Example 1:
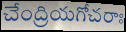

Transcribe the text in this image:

చేంద్రియగోచరాః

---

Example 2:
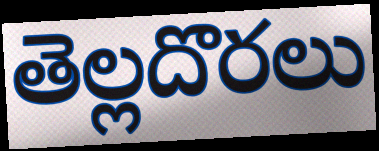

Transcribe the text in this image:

తెల్లదొరలు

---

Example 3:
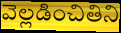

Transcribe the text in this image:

వెల్లడించితిని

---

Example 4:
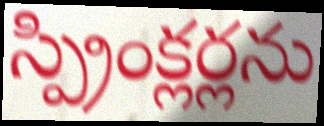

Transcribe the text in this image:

స్ప్రింక్లర్లను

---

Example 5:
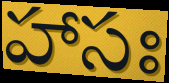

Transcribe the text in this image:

హాసః